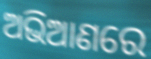
ଅଭିଆଣରେ